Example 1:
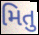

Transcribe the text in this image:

મિતુ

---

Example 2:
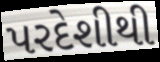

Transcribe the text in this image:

પરદેશીથી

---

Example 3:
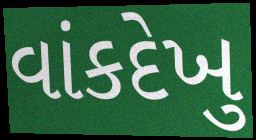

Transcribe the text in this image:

વાંકદેખુ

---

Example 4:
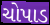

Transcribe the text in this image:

ચોપાડ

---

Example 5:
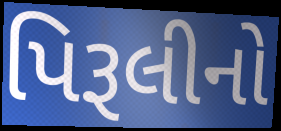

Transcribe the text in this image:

પિરૂલીનો